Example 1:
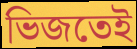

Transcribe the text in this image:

ভিজতেই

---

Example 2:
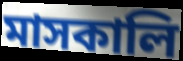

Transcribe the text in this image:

মাসকালি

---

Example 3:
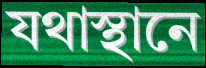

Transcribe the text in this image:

যথাস্থানে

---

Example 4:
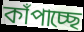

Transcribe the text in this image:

কাঁপাচ্ছে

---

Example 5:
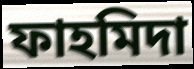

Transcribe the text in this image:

ফাহমিদা